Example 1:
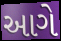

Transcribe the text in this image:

આગે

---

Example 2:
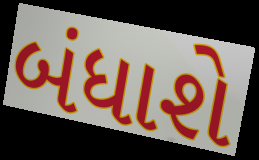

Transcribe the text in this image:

બંધાશે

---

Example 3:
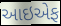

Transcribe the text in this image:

આઇએફ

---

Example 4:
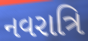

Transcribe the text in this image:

નવરાત્રિ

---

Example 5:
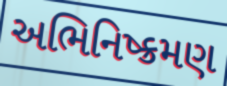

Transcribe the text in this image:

અભિનિષ્ક્રમણ